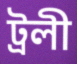
ট্ৰলী